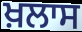
ਖ਼ਲਾਸ